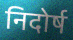
निदोर्ष